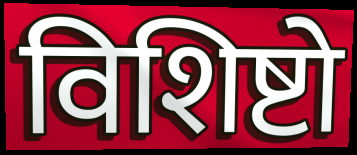
विशिष्टो